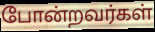
போன்றவர்கள்